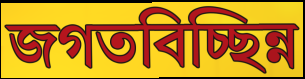
জগতবিচ্ছিন্ন